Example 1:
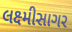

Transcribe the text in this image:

લક્ષ્મીસાગર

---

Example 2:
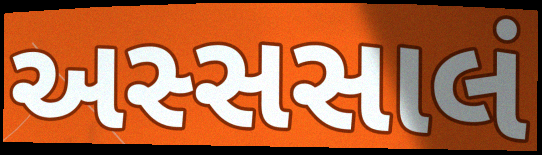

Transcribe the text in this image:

અસ્સસાલં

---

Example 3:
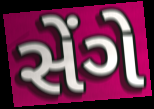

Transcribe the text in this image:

સેંગે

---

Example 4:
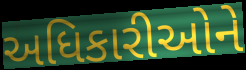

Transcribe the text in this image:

અધિકારીઓને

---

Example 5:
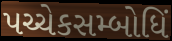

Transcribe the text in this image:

પચ્ચેકસમ્બોધિં